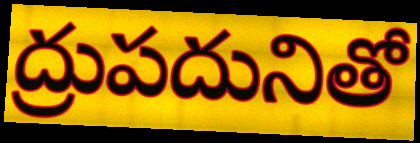
ద్రుపదునితో